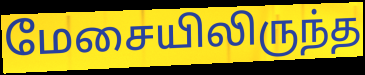
மேசையிலிருந்த